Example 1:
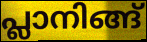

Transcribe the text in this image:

പ്ലാനിങ്ങ്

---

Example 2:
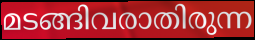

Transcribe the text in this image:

മടങ്ങിവരാതിരുന്ന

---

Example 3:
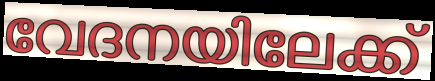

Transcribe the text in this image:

വേദനയിലേക്ക്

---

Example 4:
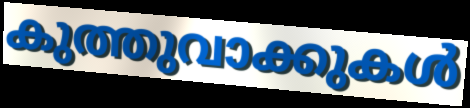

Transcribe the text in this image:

കുത്തുവാക്കുകൾ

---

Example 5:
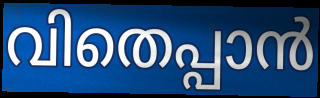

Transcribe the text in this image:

വിതെപ്പാൻ